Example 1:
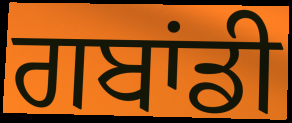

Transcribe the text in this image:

ਗਬਾਂਡੀ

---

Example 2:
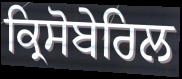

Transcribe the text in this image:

ਕ੍ਰਿਸੋਬੇਰਿਲ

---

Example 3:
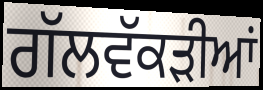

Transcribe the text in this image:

ਗੱਲਵੱਕੜੀਆਂ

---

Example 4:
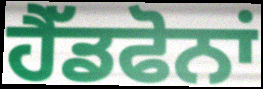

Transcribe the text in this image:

ਹੈੱਡਫੋਨਾਂ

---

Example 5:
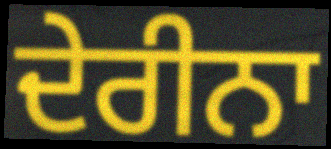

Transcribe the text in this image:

ਦੇਰੀਨਾ